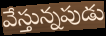
వేస్తున్నపుడు